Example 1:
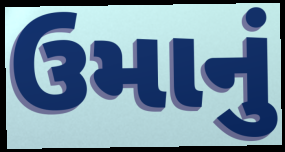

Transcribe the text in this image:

ઉમાનું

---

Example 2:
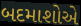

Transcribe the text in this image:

બદમાશોએ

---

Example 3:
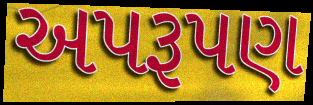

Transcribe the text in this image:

અપરૂપણ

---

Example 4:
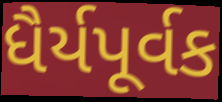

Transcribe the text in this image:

ધૈર્યપૂર્વક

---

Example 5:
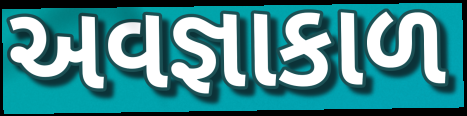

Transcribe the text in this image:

અવજ્ઞાકાળ